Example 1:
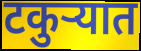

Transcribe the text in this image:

टकुर्‍यात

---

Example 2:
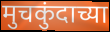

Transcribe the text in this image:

मुचकुंदाच्या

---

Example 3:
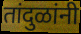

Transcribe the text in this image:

तांदुळांनी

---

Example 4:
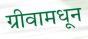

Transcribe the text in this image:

ग्रीवामधून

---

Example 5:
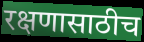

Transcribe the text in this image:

रक्षणासाठीच